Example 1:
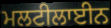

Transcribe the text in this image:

ਮਲਟੀਲਾਈਨ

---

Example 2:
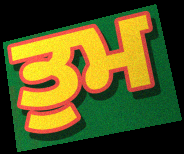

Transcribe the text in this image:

ਤੁਮ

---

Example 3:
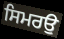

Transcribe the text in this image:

ਸਿਮਰਉ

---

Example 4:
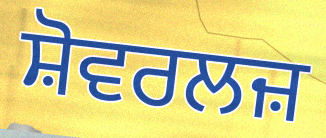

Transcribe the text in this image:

ਸ਼ੋਵਰਲਜ਼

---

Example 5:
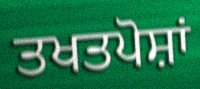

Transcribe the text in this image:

ਤਖਤਪੋਸ਼ਾਂ